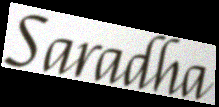
Saradha